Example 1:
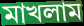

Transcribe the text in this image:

মাখলাম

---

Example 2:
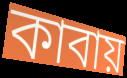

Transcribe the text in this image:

কাবায়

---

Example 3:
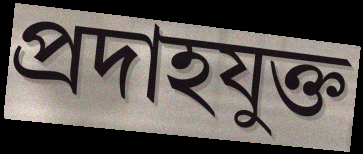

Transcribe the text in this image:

প্রদাহযুক্ত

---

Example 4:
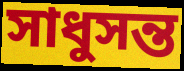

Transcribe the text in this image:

সাধুসন্ত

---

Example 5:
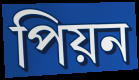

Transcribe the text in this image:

পিয়ন